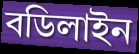
বডিলাইন